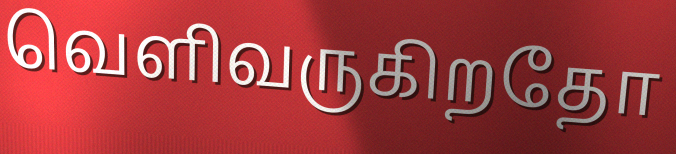
வெளிவருகிறதோ